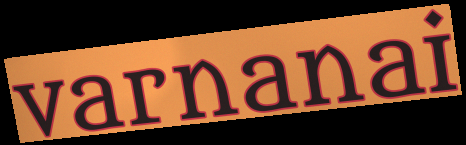
varnanai